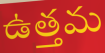
ఉత్తమ